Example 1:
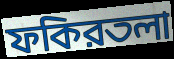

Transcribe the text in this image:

ফকিরতলা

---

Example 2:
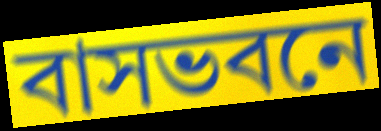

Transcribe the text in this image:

বাসভবনে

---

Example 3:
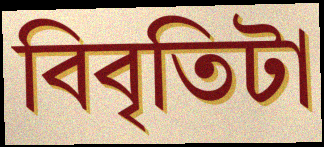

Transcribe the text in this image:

বিবৃতিটা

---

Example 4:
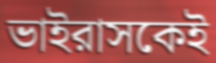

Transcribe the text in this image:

ভাইরাসকেই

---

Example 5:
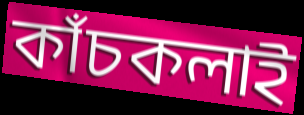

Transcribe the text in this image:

কাঁচকলাই